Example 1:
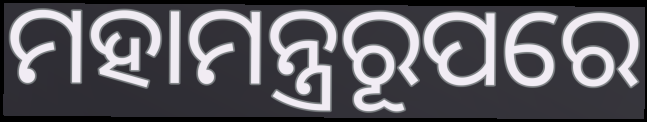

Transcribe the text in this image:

ମହାମନ୍ତ୍ରରୂପରେ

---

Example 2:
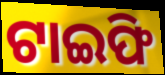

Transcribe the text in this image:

ଟାଇଫି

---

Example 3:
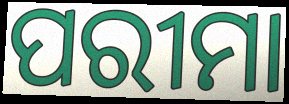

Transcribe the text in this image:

ପରୀମା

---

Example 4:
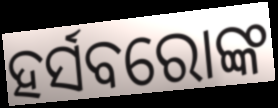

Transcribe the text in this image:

ହର୍ସବରୋଙ୍କ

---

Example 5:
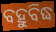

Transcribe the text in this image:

ବହୁବିଦ୍ଧ